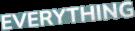
EVERYTHING